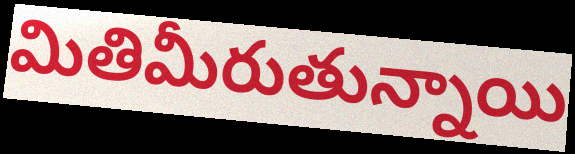
మితిమీరుతున్నాయి